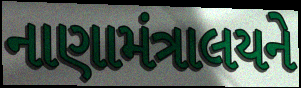
નાણામંત્રાલયને